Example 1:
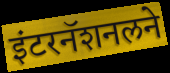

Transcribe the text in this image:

इंटरनॅशनलने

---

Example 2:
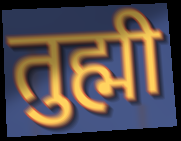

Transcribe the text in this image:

तुह्मी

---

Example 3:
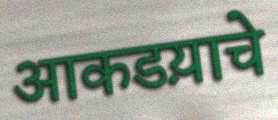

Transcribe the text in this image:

आकडय़ाचे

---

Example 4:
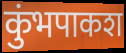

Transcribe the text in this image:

कुंभपाकश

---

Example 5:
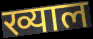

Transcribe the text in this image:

ख्याल